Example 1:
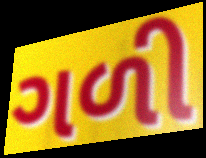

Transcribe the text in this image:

ગળી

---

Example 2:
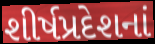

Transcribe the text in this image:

શીર્ષપ્રદેશનાં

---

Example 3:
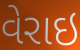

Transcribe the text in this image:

વેરાઇ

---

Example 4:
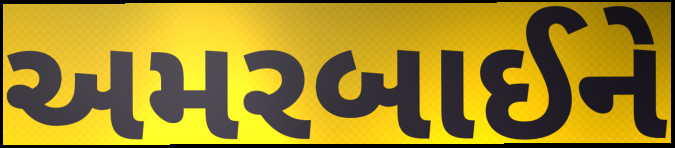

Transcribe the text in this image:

અમરબાઈને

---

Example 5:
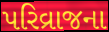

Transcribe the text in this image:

પરિવ્રાજના